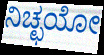
ನಿಚ್ಛಯೋ